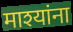
माश्यांना